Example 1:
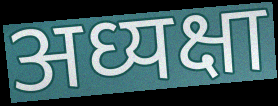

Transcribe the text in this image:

अध्यक्षा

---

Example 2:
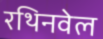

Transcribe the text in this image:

रथिनवेल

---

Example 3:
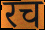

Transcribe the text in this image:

रच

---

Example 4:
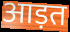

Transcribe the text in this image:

आड़त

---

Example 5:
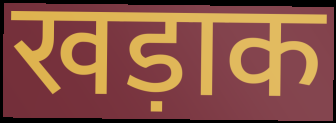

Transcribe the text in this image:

खड़ाक